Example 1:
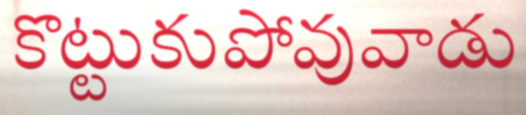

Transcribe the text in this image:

కొట్టుకుపోవువాడు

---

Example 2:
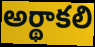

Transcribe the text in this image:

అర్థాకలి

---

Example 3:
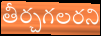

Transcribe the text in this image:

తీర్చగలరని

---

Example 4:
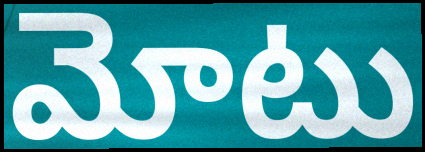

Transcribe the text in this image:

మోటు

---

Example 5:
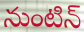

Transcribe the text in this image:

నుంటిన్